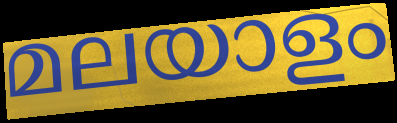
മലയാളം